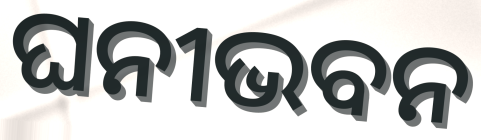
ଘନୀଭବନ